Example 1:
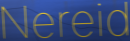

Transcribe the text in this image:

Nereid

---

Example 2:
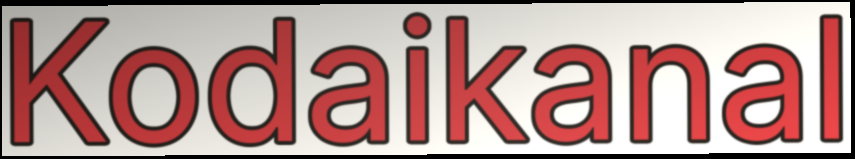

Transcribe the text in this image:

Kodaikanal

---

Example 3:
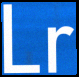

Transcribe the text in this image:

Lr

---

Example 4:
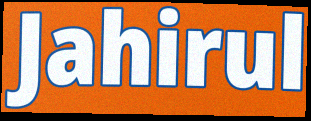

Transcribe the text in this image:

Jahirul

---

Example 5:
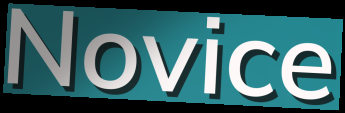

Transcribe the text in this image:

Novice